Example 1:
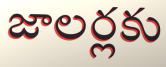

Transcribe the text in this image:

జాలర్లకు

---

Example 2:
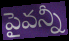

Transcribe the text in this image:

పైవన్నీ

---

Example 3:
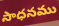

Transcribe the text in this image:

సాధనము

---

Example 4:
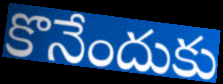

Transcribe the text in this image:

కొనేందుకు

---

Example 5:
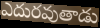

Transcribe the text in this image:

ఎదురవుతాడు